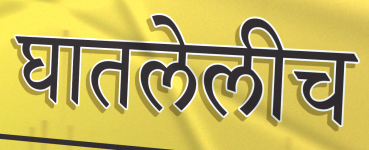
घातलेलीच